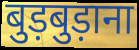
बुड़बुड़ाना